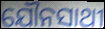
ଯୌନସାଥୀ